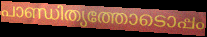
പാണ്ഡിത്യത്തോടൊപ്പം